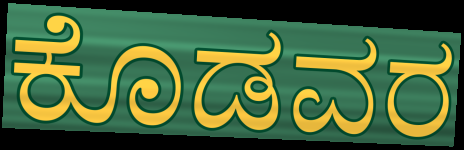
ಕೊಡವರ